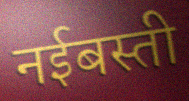
नईबस्ती